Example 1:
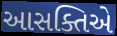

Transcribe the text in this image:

આસક્તિએ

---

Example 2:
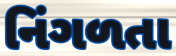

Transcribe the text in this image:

નિંગળતા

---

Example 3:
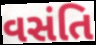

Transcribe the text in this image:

વસંતિ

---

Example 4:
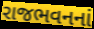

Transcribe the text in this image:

રાજભવનનાં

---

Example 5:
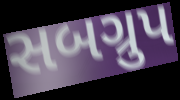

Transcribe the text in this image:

સબગ્રુપ